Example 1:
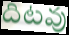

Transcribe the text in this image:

దిటవు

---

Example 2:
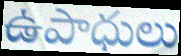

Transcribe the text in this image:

ఉపాధులు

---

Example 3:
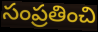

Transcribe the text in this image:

సంప్రతించి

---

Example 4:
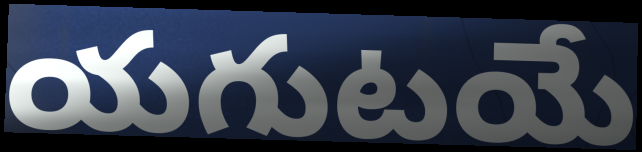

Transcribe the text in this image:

యగుటయే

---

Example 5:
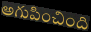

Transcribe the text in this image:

అగుపించింది